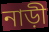
নাড়ী